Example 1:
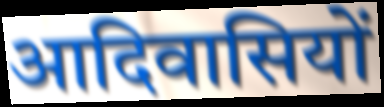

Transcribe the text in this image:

आदिवासियों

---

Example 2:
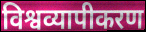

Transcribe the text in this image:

विश्वव्यापीकरण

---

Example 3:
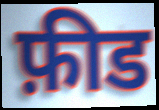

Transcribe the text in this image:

फ़ीड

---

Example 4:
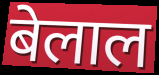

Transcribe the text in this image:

बेलाल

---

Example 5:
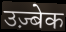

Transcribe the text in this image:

उज़्बेक